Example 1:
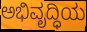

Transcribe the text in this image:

ಅಭಿವೃದ್ಧಿಯ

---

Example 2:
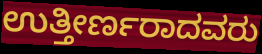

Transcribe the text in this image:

ಉತ್ತೀರ್ಣರಾದವರು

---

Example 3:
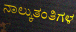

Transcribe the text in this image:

ನಾಲ್ಕುತಂತಿಗಳ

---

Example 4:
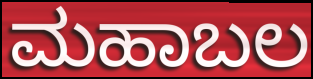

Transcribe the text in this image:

ಮಹಾಬಲ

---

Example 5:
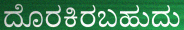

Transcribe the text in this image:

ದೊರಕಿರಬಹುದು